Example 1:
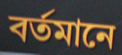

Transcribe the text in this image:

বর্তমানে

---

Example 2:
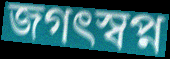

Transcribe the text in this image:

জগৎস্বপ্ন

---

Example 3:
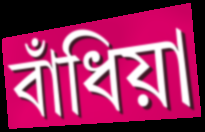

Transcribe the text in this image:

বাঁধিয়া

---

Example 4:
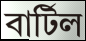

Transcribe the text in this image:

বার্টিল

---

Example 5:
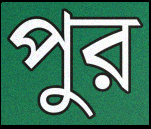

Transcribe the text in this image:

পুর